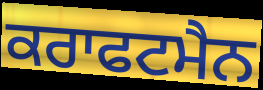
ਕਰਾਫਟਮੈਨ